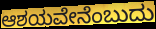
ಆಶಯವೇನೆಂಬುದು